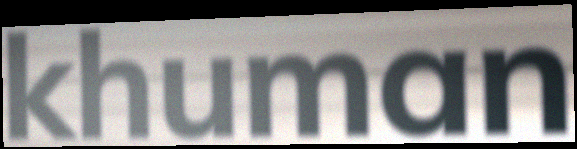
khuman